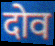
दोव